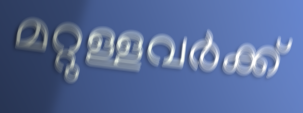
മറ്റുള്ളവർക്ക്